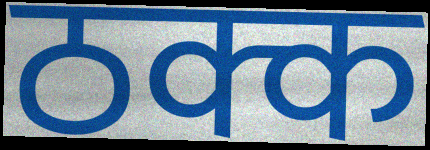
ठक्क